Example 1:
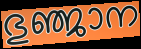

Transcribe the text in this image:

ഭുഞ്ജാന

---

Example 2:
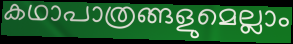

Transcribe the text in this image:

കഥാപാത്രങ്ങളുമെല്ലാം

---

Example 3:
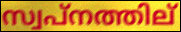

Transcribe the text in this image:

സ്വപ്നത്തില്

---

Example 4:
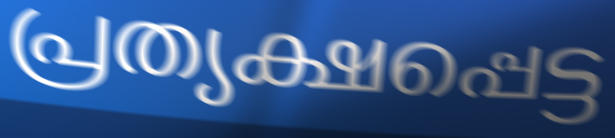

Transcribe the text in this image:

പ്രത്യക്ഷപ്പെട്ട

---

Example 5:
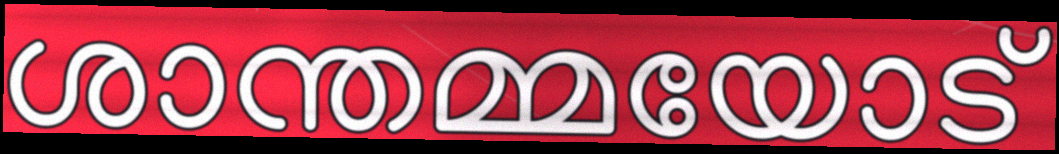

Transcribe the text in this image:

ശാന്തമ്മയോട്